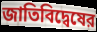
জাতিবিদ্বেষের